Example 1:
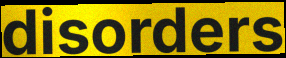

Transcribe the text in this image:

disorders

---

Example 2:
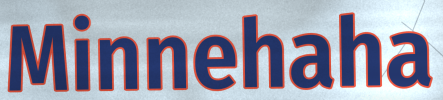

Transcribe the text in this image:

Minnehaha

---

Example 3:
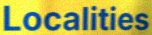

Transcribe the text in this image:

Localities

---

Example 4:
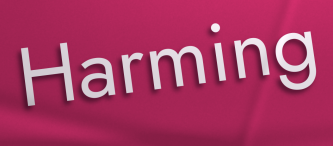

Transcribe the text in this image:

Harming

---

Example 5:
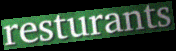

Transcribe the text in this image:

resturants